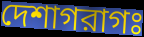
দেশাগরাগঃ